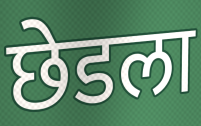
छेडला